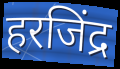
हरजिंद्र